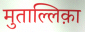
मुताल्लिक़ा